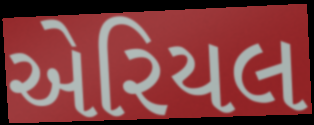
એરિયલ